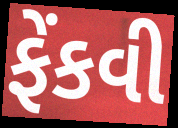
ફેંકવી